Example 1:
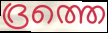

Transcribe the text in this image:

ദ്രത്തെ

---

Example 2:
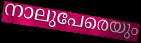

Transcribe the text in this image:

നാലുപേരെയും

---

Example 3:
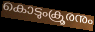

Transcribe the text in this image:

കൊടുംക്രൂരനും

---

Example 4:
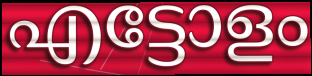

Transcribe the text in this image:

എട്ടോളം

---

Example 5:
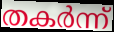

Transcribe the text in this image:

തകർന്ന്